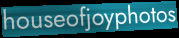
houseofjoyphotos